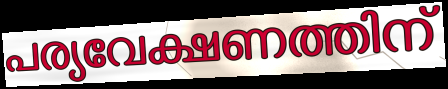
പര്യവേക്ഷണത്തിന്